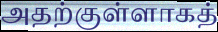
அதற்குள்ளாகத்